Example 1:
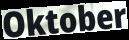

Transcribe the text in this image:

Oktober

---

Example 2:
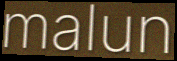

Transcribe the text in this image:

malun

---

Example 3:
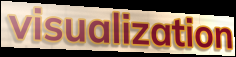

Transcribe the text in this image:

visualization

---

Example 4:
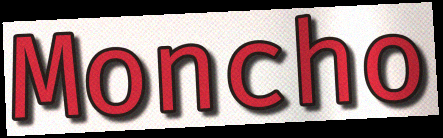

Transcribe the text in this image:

Moncho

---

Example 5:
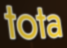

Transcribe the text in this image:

tota